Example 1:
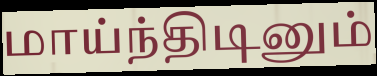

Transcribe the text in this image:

மாய்ந்திடினும்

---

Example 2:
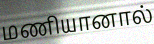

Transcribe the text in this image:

மணியானால்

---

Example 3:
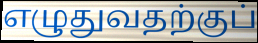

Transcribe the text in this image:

எழுதுவதற்குப்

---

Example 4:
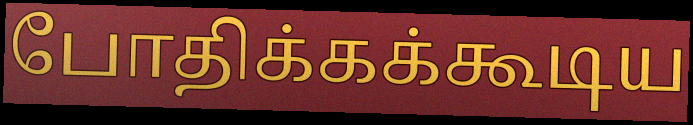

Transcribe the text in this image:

போதிக்கக்கூடிய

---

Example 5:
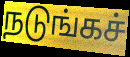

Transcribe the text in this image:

நடுங்கச்